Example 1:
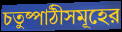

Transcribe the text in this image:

চতুষ্পাঠীসমূহের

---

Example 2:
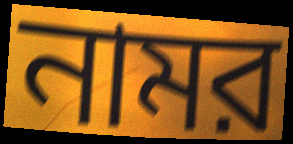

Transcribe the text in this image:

নামর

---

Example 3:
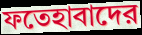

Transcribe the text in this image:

ফতেহাবাদের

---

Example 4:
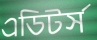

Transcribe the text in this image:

এডিটর্স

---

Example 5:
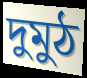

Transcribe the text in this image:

দুমুঠ